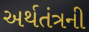
અર્થતંત્રની